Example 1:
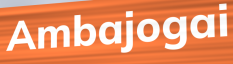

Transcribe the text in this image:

Ambajogai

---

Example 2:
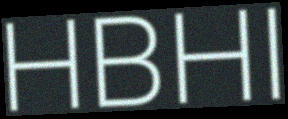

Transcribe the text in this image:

HBHI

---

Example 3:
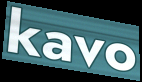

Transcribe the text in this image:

kavo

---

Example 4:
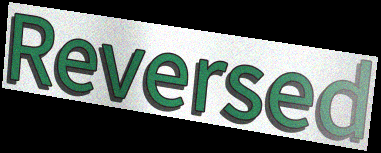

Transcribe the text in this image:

Reversed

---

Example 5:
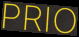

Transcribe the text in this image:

PRIO